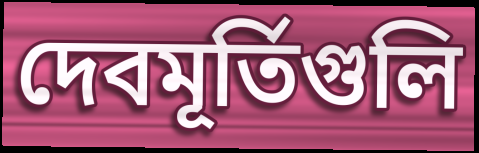
দেবমূর্তিগুলি